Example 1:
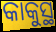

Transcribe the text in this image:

କାକୁସ୍ଥ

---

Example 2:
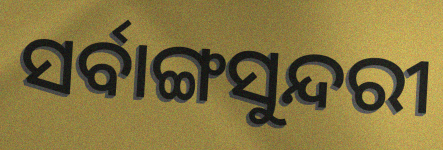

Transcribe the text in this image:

ସର୍ବାଙ୍ଗସୁନ୍ଦରୀ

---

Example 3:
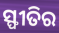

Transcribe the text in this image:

ସ୍ଫୀତିର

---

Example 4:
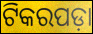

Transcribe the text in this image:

ଟିକରପଡ଼ା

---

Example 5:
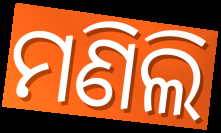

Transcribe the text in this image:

ମଣିଲି